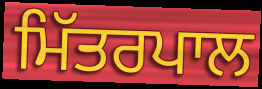
ਮਿੱਤਰਪਾਲ